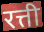
रत्ती